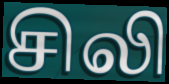
சிலி